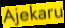
Ajekaru